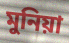
মুনিয়া